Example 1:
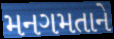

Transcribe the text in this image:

મનગમતાને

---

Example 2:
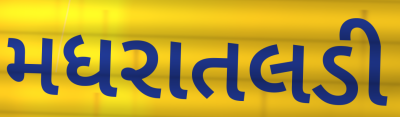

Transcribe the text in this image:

મધરાતલડી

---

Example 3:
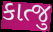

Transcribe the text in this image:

કાત્જુ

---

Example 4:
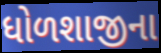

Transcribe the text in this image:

ધોળશાજીના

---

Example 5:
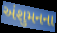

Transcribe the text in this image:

અંશુમનના